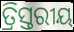
ତ୍ରିସ୍ତରୀୟ